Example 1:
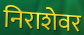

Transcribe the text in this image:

निराशेवर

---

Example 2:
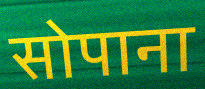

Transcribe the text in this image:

सोपाना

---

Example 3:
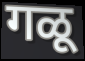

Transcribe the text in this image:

गळू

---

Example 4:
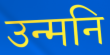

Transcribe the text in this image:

उन्मनि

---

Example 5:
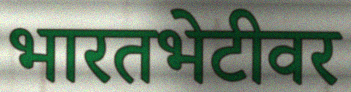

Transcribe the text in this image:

भारतभेटीवर